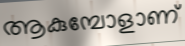
ആകുമ്പോളാണ്